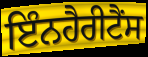
ਇੰਨਹੈਰੀਟੈੰਸ